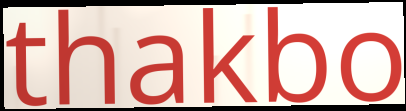
thakbo